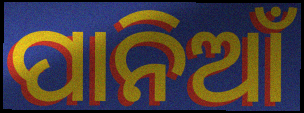
ପାନିଆଁ